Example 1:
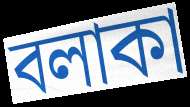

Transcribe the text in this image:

বলাকা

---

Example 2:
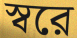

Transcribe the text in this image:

স্বরে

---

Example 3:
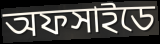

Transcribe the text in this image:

অফসাইডে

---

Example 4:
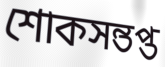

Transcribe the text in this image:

শোকসন্তপ্ত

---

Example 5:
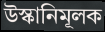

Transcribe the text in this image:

উস্কানিমূলক